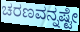
ಚರಣವನ್ನಷ್ಟೇ